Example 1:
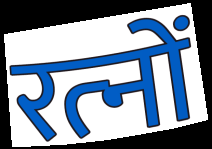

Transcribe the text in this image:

रत्‍नों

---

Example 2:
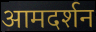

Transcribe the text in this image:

आमदर्शन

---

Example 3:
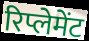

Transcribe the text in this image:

रिप्लेमेंट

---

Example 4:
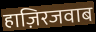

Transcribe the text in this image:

हाज़िरजवाब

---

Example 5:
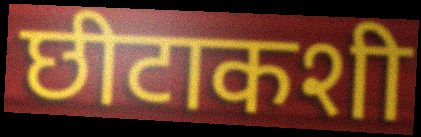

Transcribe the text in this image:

छीटाकशी